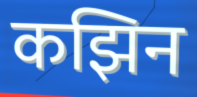
कझिन